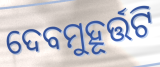
ଦେବମୁହୂର୍ତ୍ତଟି